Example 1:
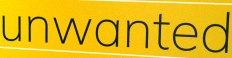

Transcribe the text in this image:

unwanted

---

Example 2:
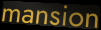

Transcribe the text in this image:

mansion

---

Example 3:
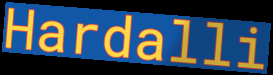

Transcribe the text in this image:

Hardalli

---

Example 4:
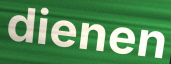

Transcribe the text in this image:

dienen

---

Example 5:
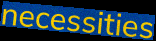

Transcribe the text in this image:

necessities